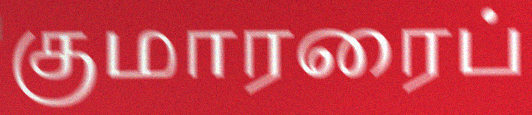
குமாரரைப்